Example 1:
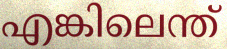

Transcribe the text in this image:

എങ്കിലെന്ത്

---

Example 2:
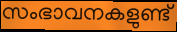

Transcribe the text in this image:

സംഭാവനകളുണ്ട്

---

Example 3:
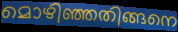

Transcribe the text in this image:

മൊഴിഞ്ഞതിങ്ങനെ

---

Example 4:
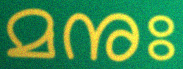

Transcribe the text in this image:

മനുഃ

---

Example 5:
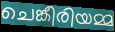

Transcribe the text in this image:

ചെങ്കീരിയമ്മ